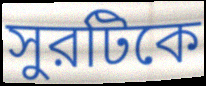
সুরটিকে